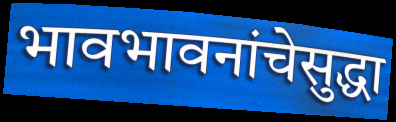
भावभावनांचेसुद्धा